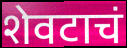
शेवटाचं